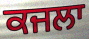
ਕਜਲਾ